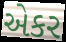
એકર